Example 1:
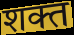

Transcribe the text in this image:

शक्त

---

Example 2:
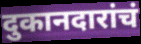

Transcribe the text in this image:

दुकानदारांचं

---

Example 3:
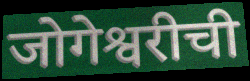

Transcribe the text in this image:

जोगेश्वरीची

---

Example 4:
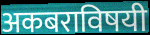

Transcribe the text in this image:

अकबराविषयी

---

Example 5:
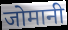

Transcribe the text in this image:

जोमानी